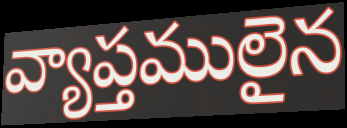
వ్యాప్తములైన